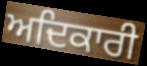
ਅਦਿਕਾਰੀ